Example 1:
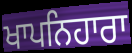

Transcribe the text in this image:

ਖਾਪਨਿਹਾਰਾ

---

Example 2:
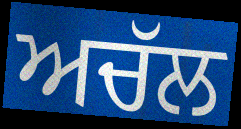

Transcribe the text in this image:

ਅਚੱਲ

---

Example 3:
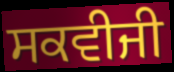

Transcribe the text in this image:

ਸਕਵੀਜੀ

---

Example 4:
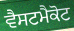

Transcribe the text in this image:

ਵੈਸਟਮੈਕੋਟ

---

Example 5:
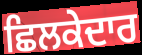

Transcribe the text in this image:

ਛਿਲਕੇਦਾਰ